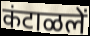
कंटाळलें